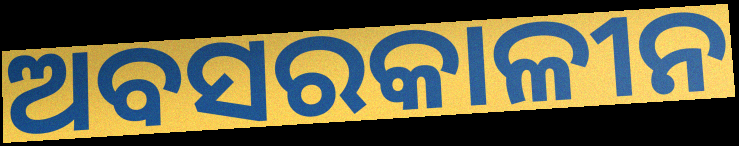
ଅବସରକାଳୀନ